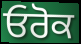
ਓਰੋਕ